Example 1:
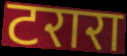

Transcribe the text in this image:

टरारा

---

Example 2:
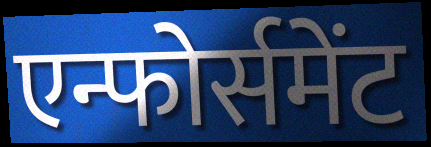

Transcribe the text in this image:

एन्फोर्समेंट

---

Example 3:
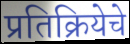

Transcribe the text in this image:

प्रतिक्रियेचे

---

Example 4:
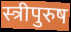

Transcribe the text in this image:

स्त्रीपुरुष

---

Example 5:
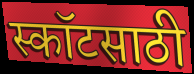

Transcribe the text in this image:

स्कॉटसाठी